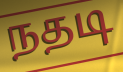
நதடி